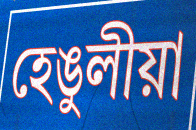
হেঙুলীয়া